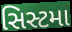
સિસ્ટમા